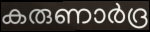
കരുണാർദ്ര